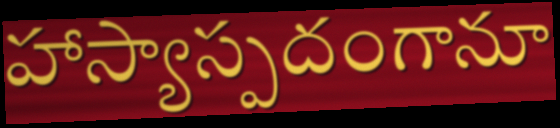
హాస్యాస్పదంగానూ